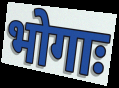
भोगाः